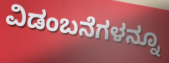
ವಿಡಂಬನೆಗಳನ್ನೂ